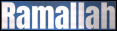
Ramallah